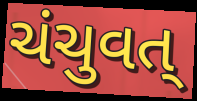
ચંચુવત્